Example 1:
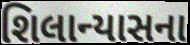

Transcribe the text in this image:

શિલાન્યાસના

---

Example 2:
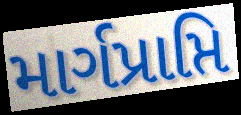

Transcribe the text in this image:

માર્ગપ્રાપ્તિ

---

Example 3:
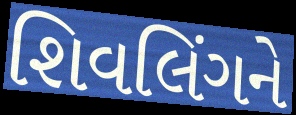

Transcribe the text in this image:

શિવલિંગને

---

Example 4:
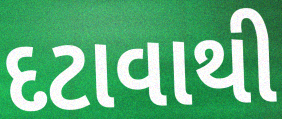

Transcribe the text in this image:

દટાવાથી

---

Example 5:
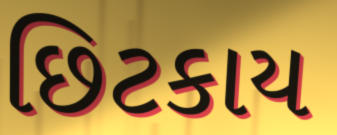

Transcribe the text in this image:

છિટકાય